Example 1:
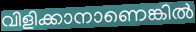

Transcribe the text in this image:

വിളിക്കാനാണെങ്കിൽ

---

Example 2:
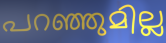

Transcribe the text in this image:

പറഞ്ഞുമില്ല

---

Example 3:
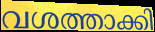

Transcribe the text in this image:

വശത്താക്കി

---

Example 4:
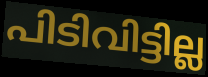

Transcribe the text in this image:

പിടിവിട്ടില്ല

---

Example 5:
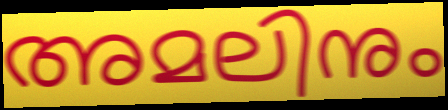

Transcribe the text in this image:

അമലിനും